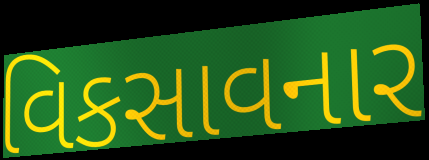
વિકસાવનાર